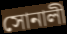
সোনালী